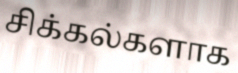
சிக்கல்களாக